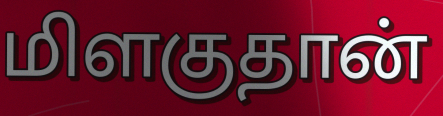
மிளகுதான்